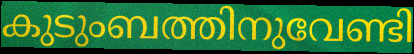
കുടുംബത്തിനുവേണ്ടി